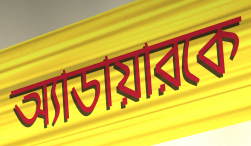
অ্যাডায়ারকে